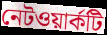
নেটওয়ার্কটি